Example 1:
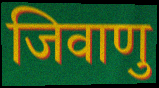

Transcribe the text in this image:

जिवाणु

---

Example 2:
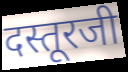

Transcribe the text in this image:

दस्तूरजी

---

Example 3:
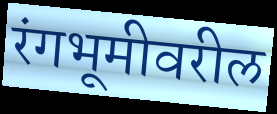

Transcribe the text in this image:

रंगभूमीवरील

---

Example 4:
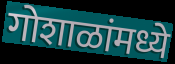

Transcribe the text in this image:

गोशाळांमध्ये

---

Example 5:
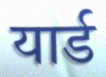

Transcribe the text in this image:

यार्ड